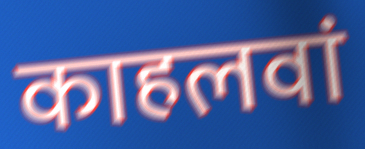
काहलवां